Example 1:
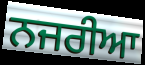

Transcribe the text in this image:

ਨਜਰੀਆ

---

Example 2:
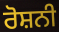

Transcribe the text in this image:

ਰੋਸ਼ਨੀ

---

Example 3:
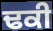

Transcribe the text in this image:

ਢਕੀ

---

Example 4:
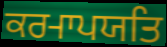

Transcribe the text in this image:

ਕਰ੍ਮਾਪਯਤਿ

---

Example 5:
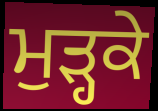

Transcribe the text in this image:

ਮੁੜ੍ਹਕੇ